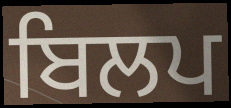
ਬਿਲਪ